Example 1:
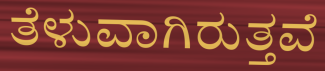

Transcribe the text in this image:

ತೆಳುವಾಗಿರುತ್ತವೆ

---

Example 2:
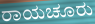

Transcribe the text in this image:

ರಾಯಚೂರು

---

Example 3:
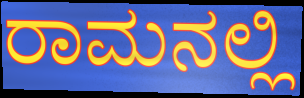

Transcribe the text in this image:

ರಾಮನಲ್ಲಿ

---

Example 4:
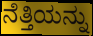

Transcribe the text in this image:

ನೆತ್ತಿಯನ್ನು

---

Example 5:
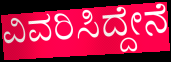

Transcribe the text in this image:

ವಿವರಿಸಿದ್ದೇನೆ